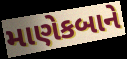
માણેકબાને